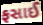
ફસાઈ